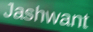
Jashwant